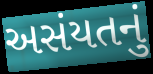
અસંયતનું